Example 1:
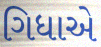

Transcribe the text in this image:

ગિધાએ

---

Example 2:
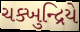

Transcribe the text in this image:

ચક્ખુન્દ્રિયે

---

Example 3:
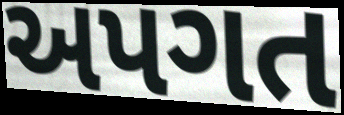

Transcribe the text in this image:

અપગત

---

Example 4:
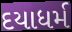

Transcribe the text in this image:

દયાધર્મ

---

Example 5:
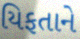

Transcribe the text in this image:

યિફતાને